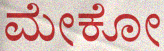
ಮೇಕೋ